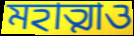
মহাত্মাও